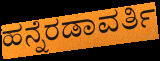
ಹನ್ನೆರಡಾವರ್ತಿ